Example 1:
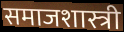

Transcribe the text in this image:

समाजशास्त्री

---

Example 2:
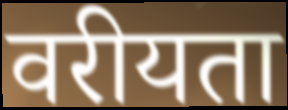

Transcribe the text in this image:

वरीयता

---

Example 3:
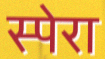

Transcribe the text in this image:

स्पेरा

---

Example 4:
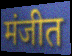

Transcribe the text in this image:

मंजीत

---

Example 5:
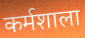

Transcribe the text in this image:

कर्मशाला